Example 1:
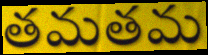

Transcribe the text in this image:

తమతమ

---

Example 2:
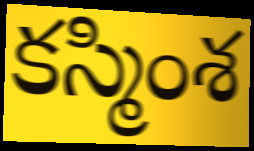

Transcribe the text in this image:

కస్మింశ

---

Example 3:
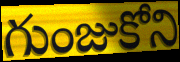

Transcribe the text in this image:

గుంజుకోని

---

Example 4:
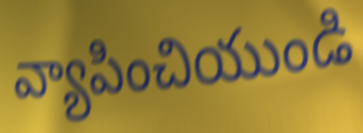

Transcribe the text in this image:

వ్యాపించియుండి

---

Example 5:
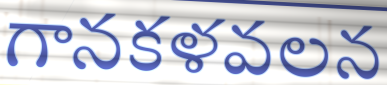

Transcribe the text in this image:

గానకళవలన